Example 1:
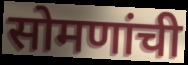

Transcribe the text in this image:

सोमणांची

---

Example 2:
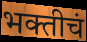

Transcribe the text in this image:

भक्तीचं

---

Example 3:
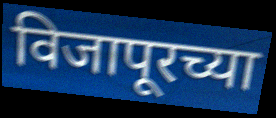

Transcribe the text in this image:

विजापूरच्या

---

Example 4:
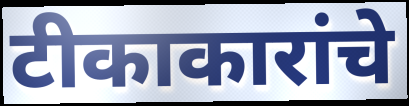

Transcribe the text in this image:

टीकाकारांचे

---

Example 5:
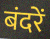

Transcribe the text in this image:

बंदरें